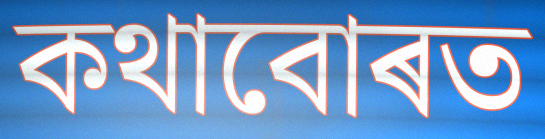
কথাবোৰত